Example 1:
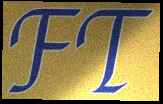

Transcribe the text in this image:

FT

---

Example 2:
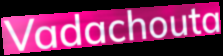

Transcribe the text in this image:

Vadachouta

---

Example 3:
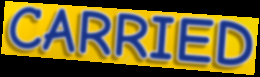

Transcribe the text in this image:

CARRIED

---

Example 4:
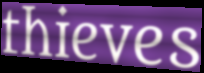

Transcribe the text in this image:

thieves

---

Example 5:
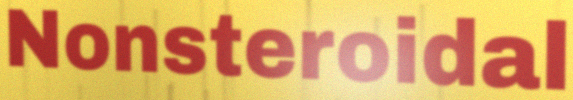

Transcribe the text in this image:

Nonsteroidal